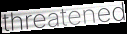
threatened